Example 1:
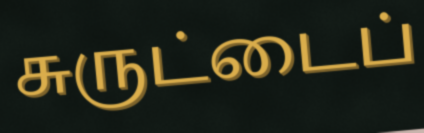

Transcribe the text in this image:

சுருட்டைப்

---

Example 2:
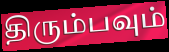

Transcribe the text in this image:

திரும்பவும்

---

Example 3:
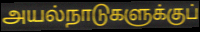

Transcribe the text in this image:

அயல்நாடுகளுக்குப்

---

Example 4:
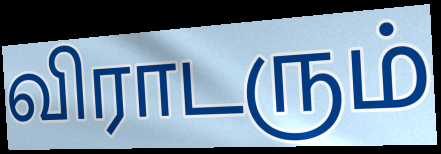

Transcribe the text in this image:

விராடரும்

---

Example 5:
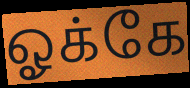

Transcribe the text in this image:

ஓக்கே